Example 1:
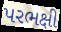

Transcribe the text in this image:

પરભક્ષી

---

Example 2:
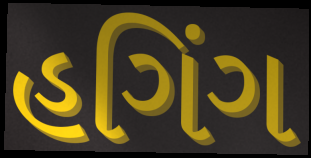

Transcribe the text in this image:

હગિંગ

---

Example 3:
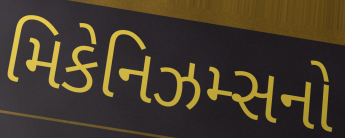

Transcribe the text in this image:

મિકેનિઝમ્સનો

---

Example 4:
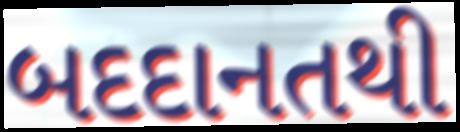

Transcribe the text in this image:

બદદાનતથી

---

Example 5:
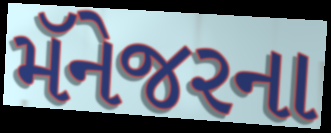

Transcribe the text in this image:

મૅનેજરના